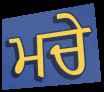
ਮਚੇ